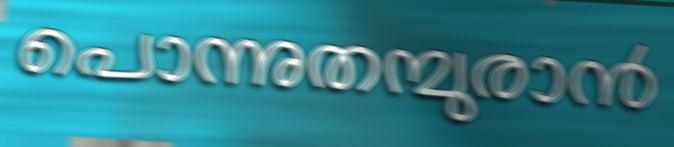
പൊന്നുതമ്പുരാൻ